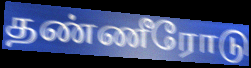
தண்ணீரோடு